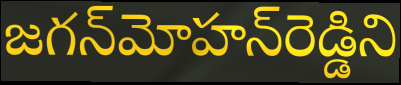
జగన్‌మోహన్‌రెడ్డిని